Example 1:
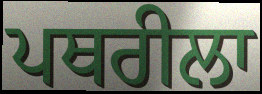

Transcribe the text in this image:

ਪਥਰੀਲਾ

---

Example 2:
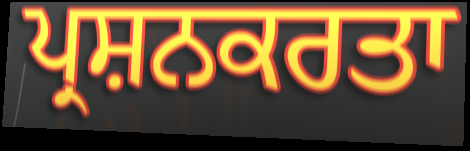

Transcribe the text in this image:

ਪ੍ਰਸ਼ਨਕਰਤਾ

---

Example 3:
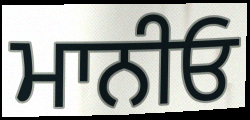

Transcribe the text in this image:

ਮਾਨੀਓ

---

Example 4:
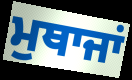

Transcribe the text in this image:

ਮੁਥਾਜਾਂ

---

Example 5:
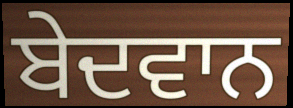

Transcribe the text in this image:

ਬੇਦਵਾਨ